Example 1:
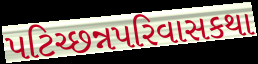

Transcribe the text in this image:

પટિચ્છન્નપરિવાસકથા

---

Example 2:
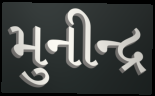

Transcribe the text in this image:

મુનીન્દ્ર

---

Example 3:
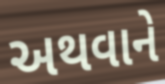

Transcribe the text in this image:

અથવાને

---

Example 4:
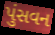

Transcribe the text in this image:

પુંસવન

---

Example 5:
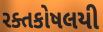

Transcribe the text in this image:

રક્તકોષલયી